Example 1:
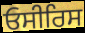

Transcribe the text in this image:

ਓਸੀਰਿਸ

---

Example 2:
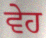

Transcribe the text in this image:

ਵੇਹ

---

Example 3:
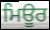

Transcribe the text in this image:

ਮਿਊਰ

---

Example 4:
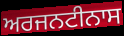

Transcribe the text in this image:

ਅਰਜਨਟੀਨਾਸ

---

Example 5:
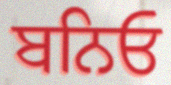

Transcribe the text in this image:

ਬਨਿਓ